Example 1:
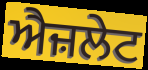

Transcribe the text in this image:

ਐਜ਼ਲੇਟ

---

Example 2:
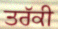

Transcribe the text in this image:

ਤਰੱਕੀ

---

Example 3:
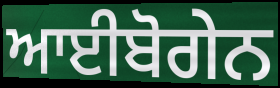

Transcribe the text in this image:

ਆਈਬੋਗੇਨ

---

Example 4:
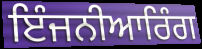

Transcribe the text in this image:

ਇੰਜਨੀਆਰਿੰਗ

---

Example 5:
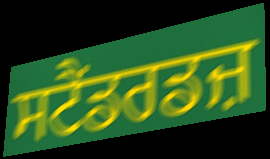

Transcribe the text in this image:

ਸਟੈਂਡਰਡਜ਼